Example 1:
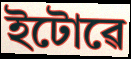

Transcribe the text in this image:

ইটোৱে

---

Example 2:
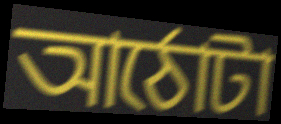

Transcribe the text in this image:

আঠোটা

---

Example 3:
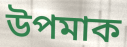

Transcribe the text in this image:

উপমাক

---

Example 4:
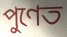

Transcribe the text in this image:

পুণেত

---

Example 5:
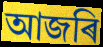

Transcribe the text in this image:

আজৰি